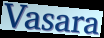
Vasara